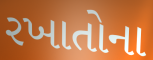
રખાતોના